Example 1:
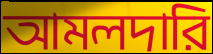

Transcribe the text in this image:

আমলদারি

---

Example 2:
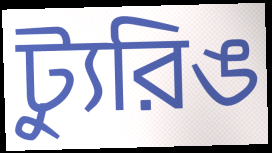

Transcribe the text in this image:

ট্যুরিঙ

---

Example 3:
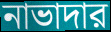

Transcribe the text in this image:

নাভাদার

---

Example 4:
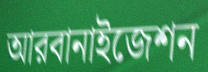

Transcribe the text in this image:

আরবানাইজেশন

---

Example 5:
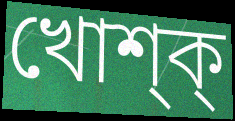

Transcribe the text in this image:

খোশ্ক্